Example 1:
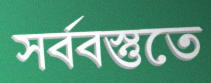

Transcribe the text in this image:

সর্ববস্তুতে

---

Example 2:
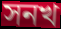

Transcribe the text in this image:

সনখ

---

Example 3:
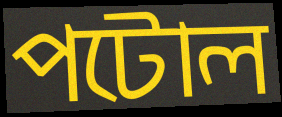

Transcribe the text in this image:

পটোল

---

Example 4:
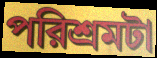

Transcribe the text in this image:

পরিশ্রমটা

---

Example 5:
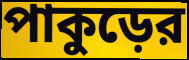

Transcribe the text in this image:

পাকুড়ের